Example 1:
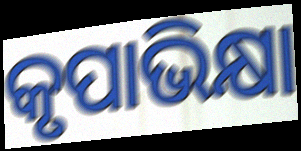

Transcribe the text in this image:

କୃପାଭିକ୍ଷା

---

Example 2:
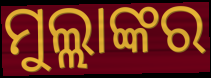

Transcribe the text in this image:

ମୁଲ୍ଲାଙ୍କର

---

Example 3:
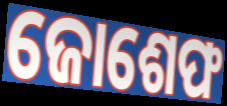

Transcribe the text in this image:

ଜୋଶେଫ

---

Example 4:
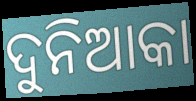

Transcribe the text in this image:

ଦୁନିଆକା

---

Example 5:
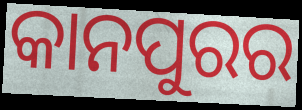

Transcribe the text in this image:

କାନପୁରର